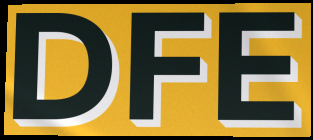
DFE